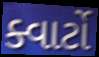
ક્વાર્ટો